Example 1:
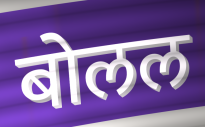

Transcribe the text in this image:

बोलल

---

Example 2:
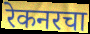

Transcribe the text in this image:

रेकनरचा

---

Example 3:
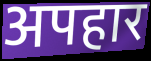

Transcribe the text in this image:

अपहार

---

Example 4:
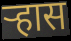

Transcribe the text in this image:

ऱ्हास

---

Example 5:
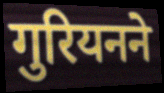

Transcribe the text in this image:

गुरियनने